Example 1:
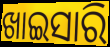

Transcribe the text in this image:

ଖାଇସାରି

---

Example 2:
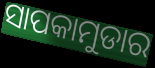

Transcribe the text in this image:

ସାପକାମୁଡାର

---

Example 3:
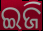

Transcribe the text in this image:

ଇଜି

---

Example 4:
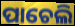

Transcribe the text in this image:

ପାଚେଲି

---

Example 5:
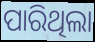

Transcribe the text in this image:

ପାରିଥିଲା